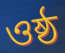
ওষ্ঠ